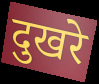
दुखरे